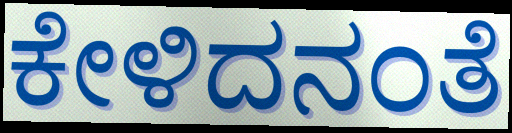
ಕೇಳಿದನಂತೆ